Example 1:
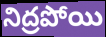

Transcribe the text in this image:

నిద్రపోయి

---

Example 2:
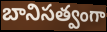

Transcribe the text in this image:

బానిసత్వంగా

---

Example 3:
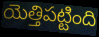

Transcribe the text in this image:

యెత్తిపట్టింది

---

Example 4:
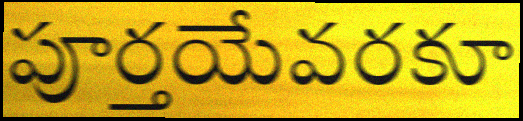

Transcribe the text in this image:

పూర్తయేవరకూ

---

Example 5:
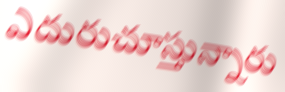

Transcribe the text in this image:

ఎదురుచూస్తున్నారు